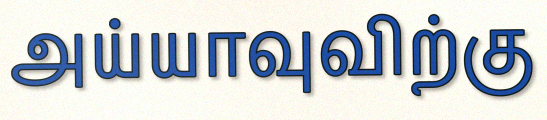
அய்யாவுவிற்கு